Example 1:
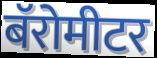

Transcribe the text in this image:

बॅरोमीटर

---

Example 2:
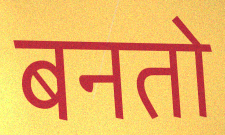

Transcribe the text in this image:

बनतो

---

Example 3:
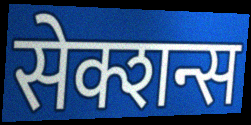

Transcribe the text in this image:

सेक्शन्स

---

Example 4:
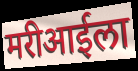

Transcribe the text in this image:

मरीआईला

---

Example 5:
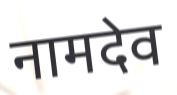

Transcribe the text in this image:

नामदेव